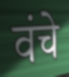
वंचे